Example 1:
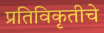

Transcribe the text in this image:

प्रतिविकृतीचे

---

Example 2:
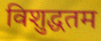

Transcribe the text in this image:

विशुद्धतम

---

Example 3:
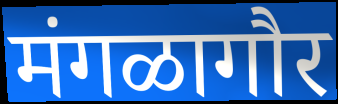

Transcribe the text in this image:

मंगळागौर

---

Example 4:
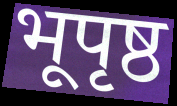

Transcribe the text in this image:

भूपृष्ठ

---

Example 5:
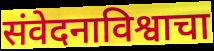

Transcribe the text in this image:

संवेदनाविश्वाचा